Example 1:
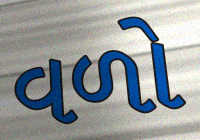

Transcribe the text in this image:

વળો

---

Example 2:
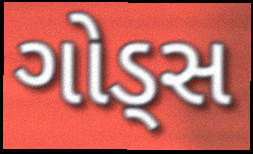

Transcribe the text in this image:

ગોડ્સ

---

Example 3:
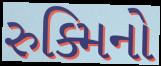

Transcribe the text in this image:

રુક્મિનો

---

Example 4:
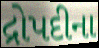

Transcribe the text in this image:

દ્રોપદીના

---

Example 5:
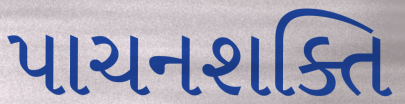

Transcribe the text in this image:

પાચનશક્તિ